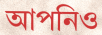
আপনিও